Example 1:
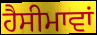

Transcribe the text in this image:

ਹੈਸੀਮਾਵਾਂ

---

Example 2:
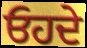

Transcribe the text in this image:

ਓਹਦੇ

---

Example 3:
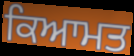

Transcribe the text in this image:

ਕਿਆਮਤ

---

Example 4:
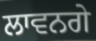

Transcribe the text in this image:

ਲਾਵਨਗੇ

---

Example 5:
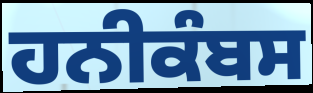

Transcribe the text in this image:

ਹਨੀਕੰਬਸ